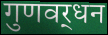
गुणवर्धन